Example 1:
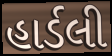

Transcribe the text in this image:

હાર્ડલી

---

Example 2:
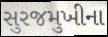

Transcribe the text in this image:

સુરજમુખીના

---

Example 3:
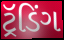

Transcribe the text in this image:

ટ્રૅડિંગ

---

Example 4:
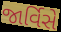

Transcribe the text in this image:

જાર્વિસે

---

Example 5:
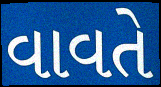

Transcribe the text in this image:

વાવતે